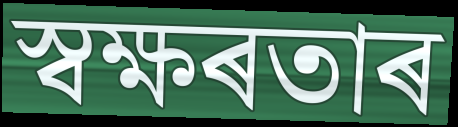
স্বক্ষৰতাৰ